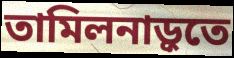
তামিলনাড়ুতে